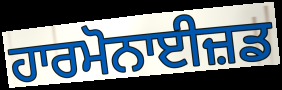
ਹਾਰਮੋਨਾਈਜ਼ਡ